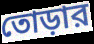
তোড়ার